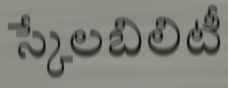
స్కేలబిలిటీ